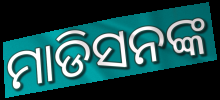
ମାଡିସନଙ୍କ